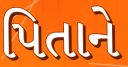
પિતાને